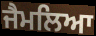
ਜੈਮਲਿਆ